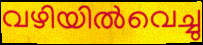
വഴിയിൽവെച്ചു